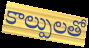
కాల్పులతో